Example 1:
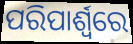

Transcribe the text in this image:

ପରିପାର୍ଶ୍ୱରେ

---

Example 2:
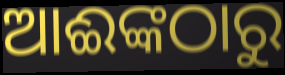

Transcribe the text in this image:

ଆଈଙ୍କଠାରୁ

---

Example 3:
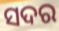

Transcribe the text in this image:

ସଦର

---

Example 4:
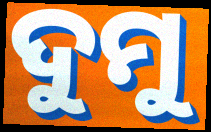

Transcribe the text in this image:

ଦୁମୁ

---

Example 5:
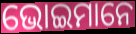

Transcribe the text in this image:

ଭୋଇମାନେ